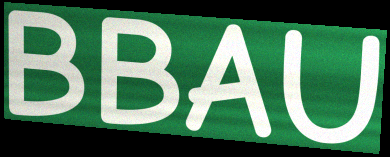
BBAU